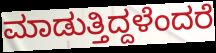
ಮಾಡುತ್ತಿದ್ದಳೆಂದರೆ